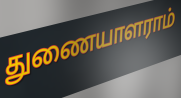
துணையாளராம்